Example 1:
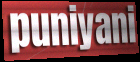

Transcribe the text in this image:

puniyani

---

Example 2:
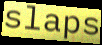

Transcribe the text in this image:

slaps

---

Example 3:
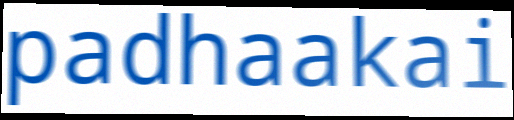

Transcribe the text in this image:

padhaakai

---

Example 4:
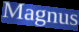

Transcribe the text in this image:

Magnus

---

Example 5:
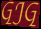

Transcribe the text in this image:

GJG